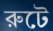
রুটে